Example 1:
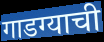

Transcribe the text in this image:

गाडग्याची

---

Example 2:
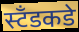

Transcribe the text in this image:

स्टॅंडकडे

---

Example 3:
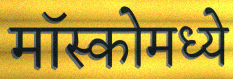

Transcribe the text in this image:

मॉस्कोमध्ये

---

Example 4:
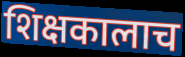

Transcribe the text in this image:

शिक्षकालाच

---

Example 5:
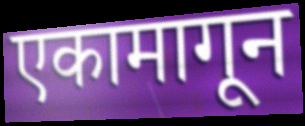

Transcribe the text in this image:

एकामागून